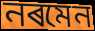
নৰমেন